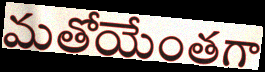
మతోయేంతగా